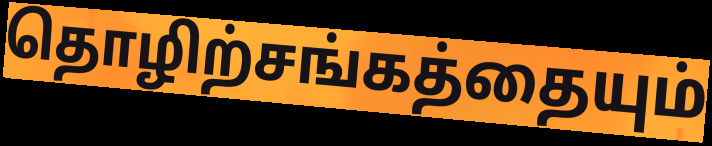
தொழிற்சங்கத்தையும்